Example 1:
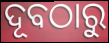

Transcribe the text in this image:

ଦୂବଠାରୁ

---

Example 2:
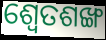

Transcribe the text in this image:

ଶ୍ୱେତଶଙ୍ଖ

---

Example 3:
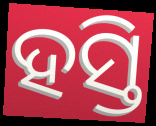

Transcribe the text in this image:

ହସ୍ତି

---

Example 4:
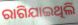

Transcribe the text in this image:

ରାଗିଯାଇଥିଲି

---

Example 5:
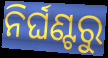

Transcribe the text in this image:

ନିର୍ଘଣ୍ଟରୁ